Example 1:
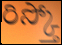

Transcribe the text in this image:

రిస్క్తో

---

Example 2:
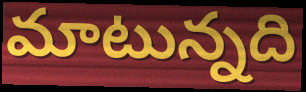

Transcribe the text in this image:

మాటున్నది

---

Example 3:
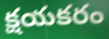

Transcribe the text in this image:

క్షయకరం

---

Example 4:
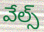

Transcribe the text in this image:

వేల్స్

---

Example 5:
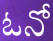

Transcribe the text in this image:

ఓనో